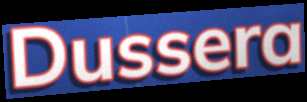
Dussera